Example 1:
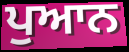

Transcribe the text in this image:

ਪੁਆਨ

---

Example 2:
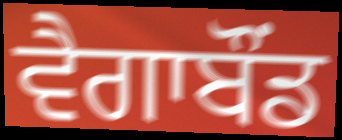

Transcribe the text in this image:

ਵੈਗਾਬੌਂਡ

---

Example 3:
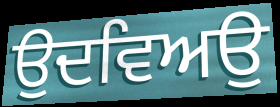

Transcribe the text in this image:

ਉਦਵਿਅਉ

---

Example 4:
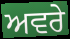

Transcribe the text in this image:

ਅਵਰੇ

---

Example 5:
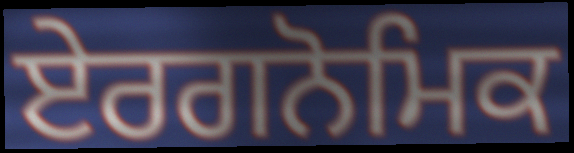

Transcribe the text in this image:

ਏਰਗਨੋਮਿਕ